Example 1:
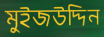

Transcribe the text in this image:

মুইজউদ্দিন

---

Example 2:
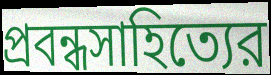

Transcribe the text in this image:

প্রবন্ধসাহিত্যের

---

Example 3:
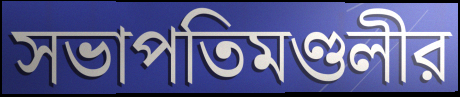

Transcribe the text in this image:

সভাপতিমণ্ডলীর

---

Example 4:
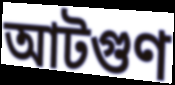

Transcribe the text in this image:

আটগুণ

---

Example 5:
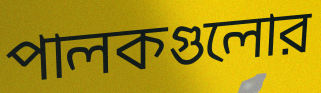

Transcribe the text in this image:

পালকগুলোর